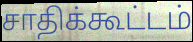
சாதிக்கூட்டம்